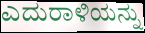
ಎದುರಾಳಿಯನ್ನು